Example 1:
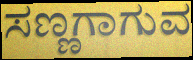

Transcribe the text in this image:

ಸಣ್ಣಗಾಗುವ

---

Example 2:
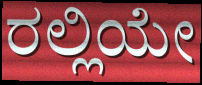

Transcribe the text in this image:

ರಲ್ಲಿಯೇ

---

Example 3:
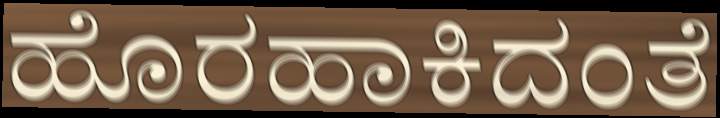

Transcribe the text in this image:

ಹೊರಹಾಕಿದಂತೆ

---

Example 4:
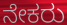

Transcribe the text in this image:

ನೇಕರು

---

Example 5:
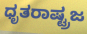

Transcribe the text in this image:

ಧೃತರಾಷ್ಟ್ರಜ